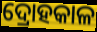
ଦ୍ରୋହକାଳ